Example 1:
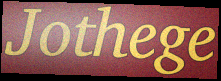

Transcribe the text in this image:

Jothege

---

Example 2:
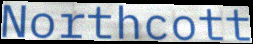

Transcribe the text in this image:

Northcott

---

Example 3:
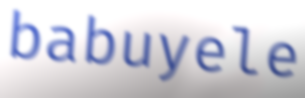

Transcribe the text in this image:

babuyele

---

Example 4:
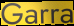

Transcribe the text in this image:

Garra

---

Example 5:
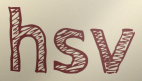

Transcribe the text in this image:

hsv